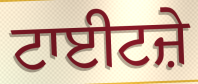
ਟਾਈਟਜ਼ੇ